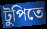
টুপিতে